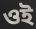
ওই